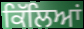
ਕਿੱਲਿਆਂ